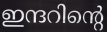
ഇന്ദറിന്റെ